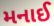
મનાઈ